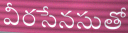
వీరసేనసుతో